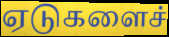
ஏடுகளைச்